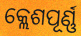
କ୍ଲେଶପୂର୍ଣ୍ଣ